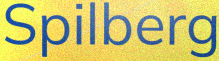
Spilberg